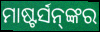
ମାଷ୍ଟର୍ସନ୍‌ଙ୍କର